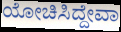
ಯೋಚಿಸಿದ್ದೇವಾ